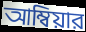
আম্বিয়ার